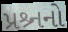
પ્રશ્ર્નનો